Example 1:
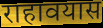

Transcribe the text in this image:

राहावयास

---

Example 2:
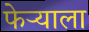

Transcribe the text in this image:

फेऱ्याला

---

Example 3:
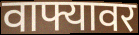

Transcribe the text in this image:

वाफ्यावर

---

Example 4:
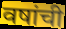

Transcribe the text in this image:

वषांची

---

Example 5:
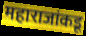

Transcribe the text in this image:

महाराजांकडू